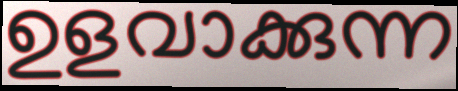
ഉളവാക്കുന്ന